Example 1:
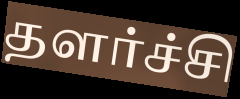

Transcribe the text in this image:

தளர்ச்சி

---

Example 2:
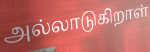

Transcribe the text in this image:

அல்லாடுகிறாள்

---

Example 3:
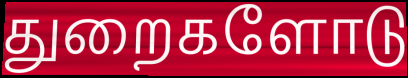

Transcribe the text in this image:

துறைகளோடு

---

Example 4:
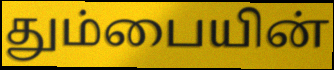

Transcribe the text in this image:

தும்பையின்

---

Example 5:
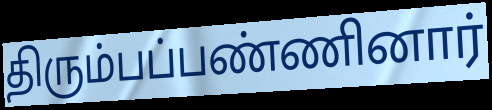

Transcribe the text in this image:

திரும்பப்பண்ணினார்